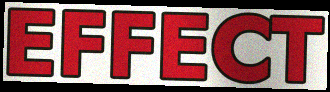
EFFECT